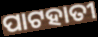
ପାଟହାତୀ